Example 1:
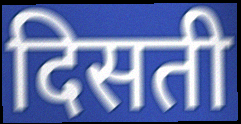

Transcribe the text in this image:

दिसती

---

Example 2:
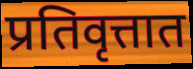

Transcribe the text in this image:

प्रतिवृत्तात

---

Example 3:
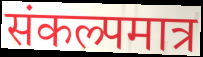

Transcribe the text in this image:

संकल्पमात्र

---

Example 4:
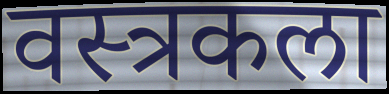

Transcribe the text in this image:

वस्त्रकला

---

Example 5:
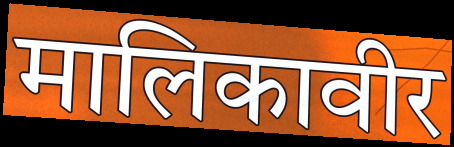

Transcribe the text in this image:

मालिकावीर